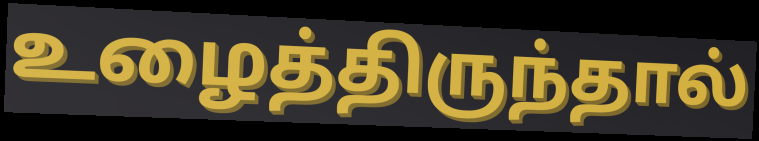
உழைத்திருந்தால்